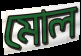
মোল